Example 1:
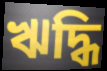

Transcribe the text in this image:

ঋদ্ধি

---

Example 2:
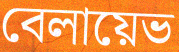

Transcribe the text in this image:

বেলায়েভ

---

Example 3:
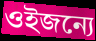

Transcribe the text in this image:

ওইজন্যে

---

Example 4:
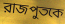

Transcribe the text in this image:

রাজপুতকে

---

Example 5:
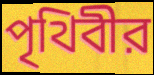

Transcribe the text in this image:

পৃথিবীর